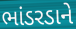
ભાંડરડાને